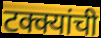
टक्क्यांची